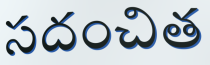
సదంచిత